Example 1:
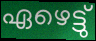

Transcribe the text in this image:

ഏഴെട്ടു്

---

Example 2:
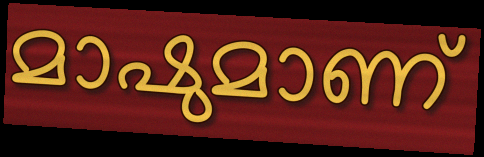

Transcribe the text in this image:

മാഷുമാണ്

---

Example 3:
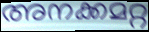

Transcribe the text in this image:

അനക്കമറ്റ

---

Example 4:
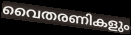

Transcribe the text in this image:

വൈതരണികളും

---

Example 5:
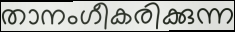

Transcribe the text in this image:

താനംഗീകരിക്കുന്ന